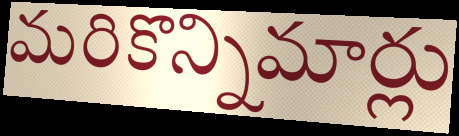
మరికొన్నిమార్లు